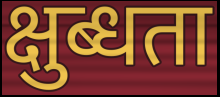
क्षुब्धता